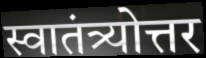
स्वातंत्र्योत्तर